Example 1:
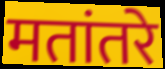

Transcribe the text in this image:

मतांतरे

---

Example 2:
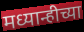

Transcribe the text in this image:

मध्यान्हीच्या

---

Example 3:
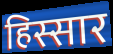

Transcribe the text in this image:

हिस्सार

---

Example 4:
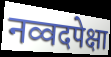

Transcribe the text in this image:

नव्वदपेक्षा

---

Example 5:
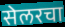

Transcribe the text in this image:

सेलरचा